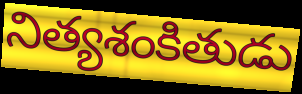
నిత్యశంకితుడు